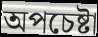
অপচেষ্টা